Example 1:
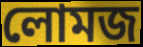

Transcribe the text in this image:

লোমজ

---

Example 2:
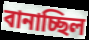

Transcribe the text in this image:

বানাচ্ছিল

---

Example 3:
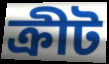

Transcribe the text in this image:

ক্রীট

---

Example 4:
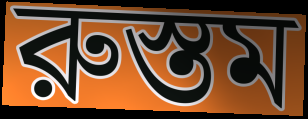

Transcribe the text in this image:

রুস্তম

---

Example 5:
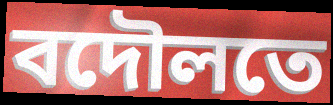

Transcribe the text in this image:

বদৌলতে